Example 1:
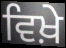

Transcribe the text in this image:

ਵਿਖ਼ੇ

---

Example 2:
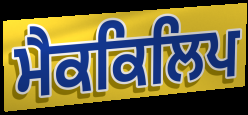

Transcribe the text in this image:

ਮੈਕਕਿਲਿਪ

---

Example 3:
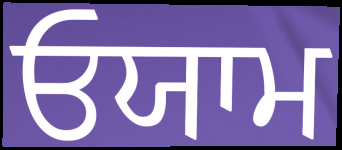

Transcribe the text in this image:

ਓਯਾਮ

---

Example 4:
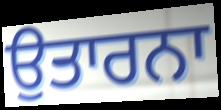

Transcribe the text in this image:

ਉਤਾਰਨਾ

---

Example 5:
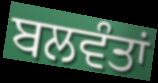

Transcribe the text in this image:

ਬਲਵੰਤਾਂ